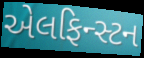
એલફિન્સ્ટન